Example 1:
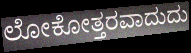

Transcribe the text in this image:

ಲೋಕೋತ್ತರವಾದುದು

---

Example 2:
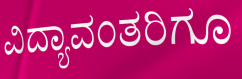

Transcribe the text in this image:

ವಿದ್ಯಾವಂತರಿಗೂ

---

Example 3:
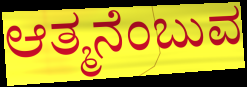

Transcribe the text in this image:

ಆತ್ಮನೆಂಬುವ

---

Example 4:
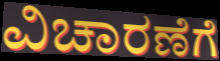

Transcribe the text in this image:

ವಿಚಾರಣೆಗೆ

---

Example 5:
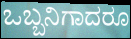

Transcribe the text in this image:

ಒಬ್ಬನಿಗಾದರೂ